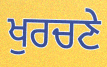
ਖੁਰਚਣੇ